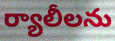
ర్యాలీలను